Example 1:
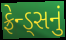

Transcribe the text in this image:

ફ્રેન્ડ્સનું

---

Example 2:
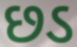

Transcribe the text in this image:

છડ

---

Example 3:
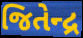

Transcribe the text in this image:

જિતેન્દ્ર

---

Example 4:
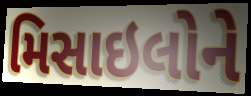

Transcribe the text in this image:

મિસાઇલોને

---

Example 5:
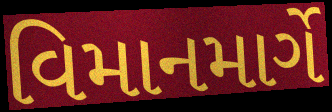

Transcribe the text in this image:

વિમાનમાર્ગે